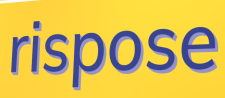
rispose